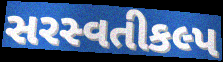
સરસ્વતીકલ્પ